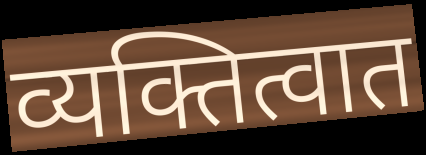
व्यक्तित्वात